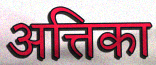
अत्तिका